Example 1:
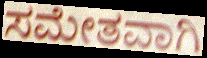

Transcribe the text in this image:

ಸಮೇತವಾಗಿ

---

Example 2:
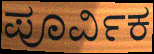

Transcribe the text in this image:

ಪೂರ್ವಿಕ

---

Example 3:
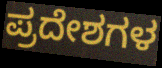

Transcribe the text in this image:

ಪ್ರದೇಶಗಳ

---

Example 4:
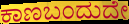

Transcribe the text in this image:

ಕಾಣಬಂದುದೇ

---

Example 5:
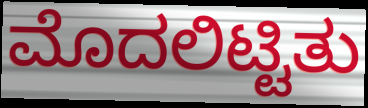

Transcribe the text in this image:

ಮೊದಲಿಟ್ಟಿತು